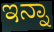
ಇನ್ನಾ